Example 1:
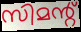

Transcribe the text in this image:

സിമന്റ്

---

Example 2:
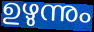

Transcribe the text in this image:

ഉഴുന്നും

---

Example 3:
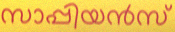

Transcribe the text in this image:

സാപ്പിയൻസ്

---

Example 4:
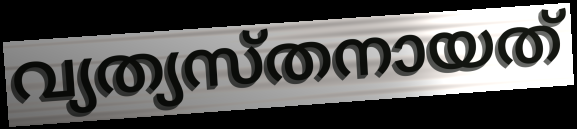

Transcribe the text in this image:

വ്യത്യസ്തനായത്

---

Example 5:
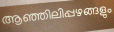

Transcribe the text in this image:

ആഞ്ഞിലിപ്പഴങ്ങളും